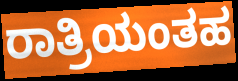
ರಾತ್ರಿಯಂತಹ